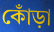
কোঁড়া